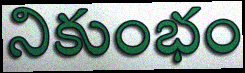
నికుంభం